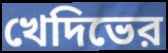
খেদিভের